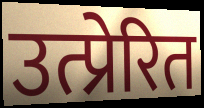
उत्‍प्रेरित